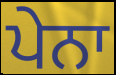
ਪੇਨਾ